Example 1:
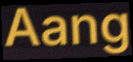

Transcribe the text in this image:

Aang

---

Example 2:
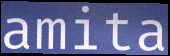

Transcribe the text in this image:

amita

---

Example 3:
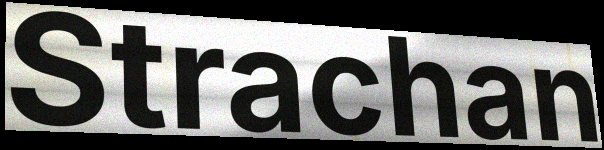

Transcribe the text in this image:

Strachan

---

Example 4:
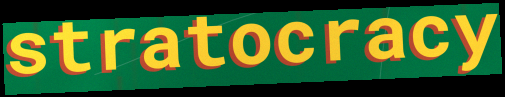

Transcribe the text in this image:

stratocracy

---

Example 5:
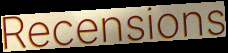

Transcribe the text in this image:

Recensions